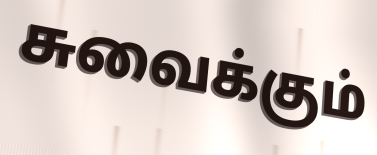
சுவைக்கும்